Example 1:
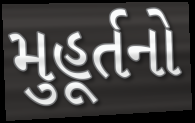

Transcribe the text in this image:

મુહૂર્તનો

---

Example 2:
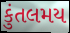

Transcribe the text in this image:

કુંતલમય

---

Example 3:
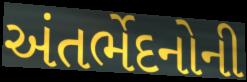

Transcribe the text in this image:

અંતર્ભેદનોની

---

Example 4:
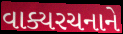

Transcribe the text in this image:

વાક્યરચનાને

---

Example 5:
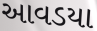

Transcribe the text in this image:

આવડયા